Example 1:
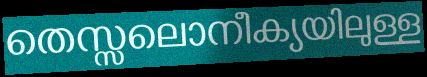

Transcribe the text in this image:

തെസ്സലൊനീക്യയിലുള്ള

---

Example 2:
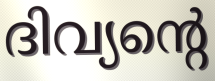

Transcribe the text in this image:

ദിവ്യന്റെ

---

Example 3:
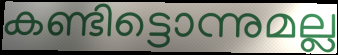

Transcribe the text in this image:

കണ്ടിട്ടൊന്നുമല്ല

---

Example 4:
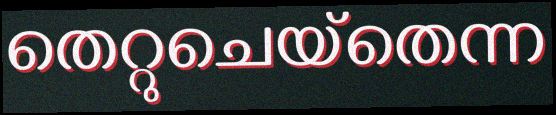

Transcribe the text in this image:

തെറ്റുചെയ്‌തെന്ന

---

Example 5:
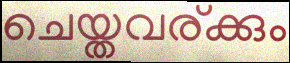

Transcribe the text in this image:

ചെയ്തവര്ക്കും